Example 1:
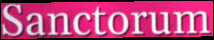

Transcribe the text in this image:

Sanctorum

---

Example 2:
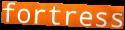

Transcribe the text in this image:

fortress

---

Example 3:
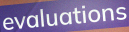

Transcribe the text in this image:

evaluations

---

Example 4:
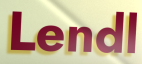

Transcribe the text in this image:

Lendl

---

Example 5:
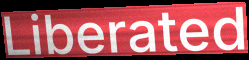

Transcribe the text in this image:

Liberated